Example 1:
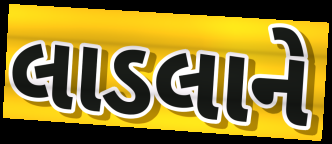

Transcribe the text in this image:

લાડલાને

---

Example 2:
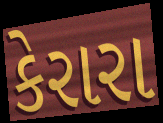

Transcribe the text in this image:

કેરારા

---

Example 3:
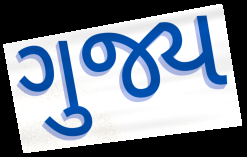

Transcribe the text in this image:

ગુજ્ય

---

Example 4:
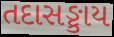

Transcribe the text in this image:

તદાસઙ્કાય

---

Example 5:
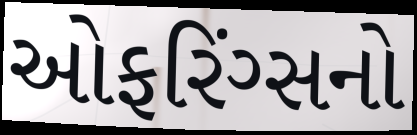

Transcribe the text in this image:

ઓફરિંગ્સનો